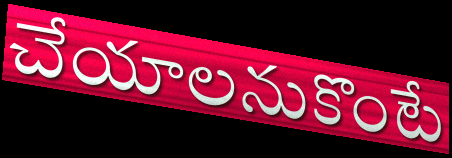
చేయాలనుకొంటే